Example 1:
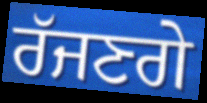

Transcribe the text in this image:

ਰੱਜਣਗੇ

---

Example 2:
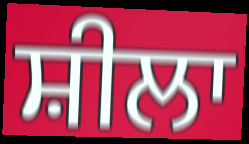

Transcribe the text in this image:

ਸ਼ੀਲਾ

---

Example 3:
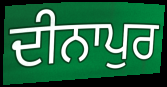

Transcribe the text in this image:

ਦੀਨਾਪੁਰ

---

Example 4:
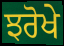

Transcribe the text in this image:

ਝਰੋਖੇ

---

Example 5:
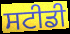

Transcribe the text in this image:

ਸਟੀਡੀ